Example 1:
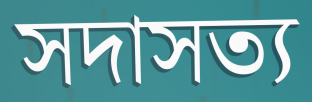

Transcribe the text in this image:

সদাসত্য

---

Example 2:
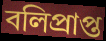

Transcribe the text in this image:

বলিপ্রাপ্ত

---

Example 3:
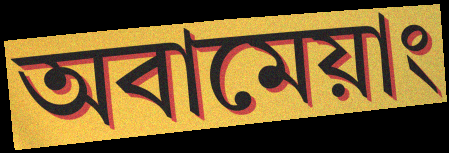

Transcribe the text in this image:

অবামেয়াং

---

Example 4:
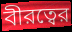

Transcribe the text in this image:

বীরত্বের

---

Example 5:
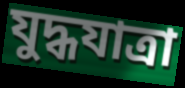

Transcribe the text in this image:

যুদ্ধযাত্রা